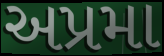
અપ્રમા